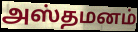
அஸ்தமனம்